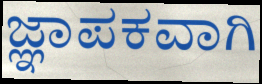
ಜ್ಞಾಪಕವಾಗಿ